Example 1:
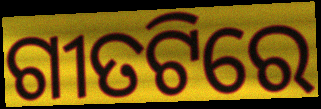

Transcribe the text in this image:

ଗୀତଟିରେ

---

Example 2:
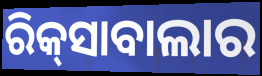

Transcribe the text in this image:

ରିକ୍‌ସାବାଲାର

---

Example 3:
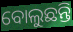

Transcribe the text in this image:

ବୋଲୁଛନ୍ତି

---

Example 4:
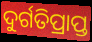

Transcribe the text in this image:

ଦୁର୍ଗତିପ୍ରାପ୍ତ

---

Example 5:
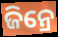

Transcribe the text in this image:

ଜିନ୍ରେ